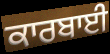
ਕਾਰਬਾਈ